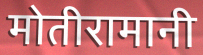
मोतीरामानी